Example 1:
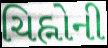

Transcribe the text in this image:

ચિહ્નોની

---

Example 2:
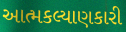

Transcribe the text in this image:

આત્મકલ્યાણકારી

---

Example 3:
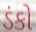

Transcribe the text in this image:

ડંકો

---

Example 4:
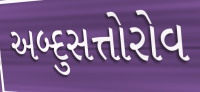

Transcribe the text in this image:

અબ્દુસત્તોરોવ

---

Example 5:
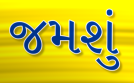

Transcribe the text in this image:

જમશું